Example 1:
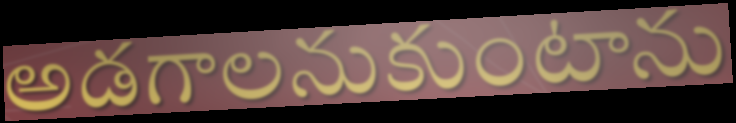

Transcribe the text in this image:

అడగాలనుకుంటాను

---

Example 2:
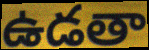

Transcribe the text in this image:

ఉడతా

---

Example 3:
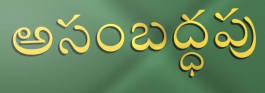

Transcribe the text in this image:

అసంబద్ధపు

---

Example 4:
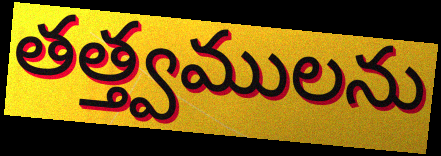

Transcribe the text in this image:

తత్త్వములను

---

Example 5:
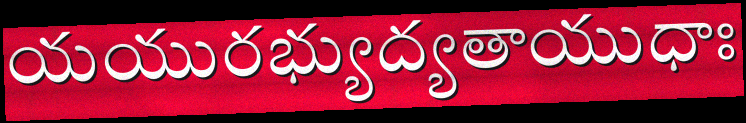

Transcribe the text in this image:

యయురభ్యుద్యతాయుధాః